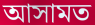
আসামত